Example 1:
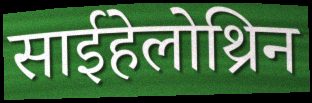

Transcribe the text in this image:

साईहेलोथ्रिन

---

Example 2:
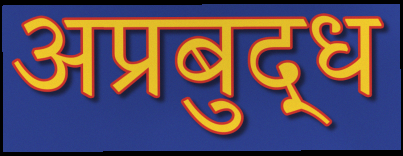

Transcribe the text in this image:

अप्रबुद्ध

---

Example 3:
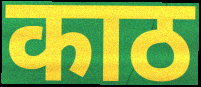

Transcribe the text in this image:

काठ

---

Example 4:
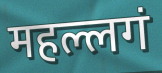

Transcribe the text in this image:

महल्लगं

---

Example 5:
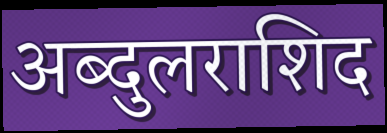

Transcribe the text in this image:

अब्दुलराशिद